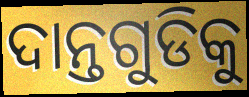
ଦାନ୍ତଗୁଡିକୁ